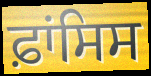
ਫ਼ਾਂਸਿਸ